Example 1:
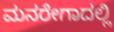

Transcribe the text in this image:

ಮನರೇಗಾದಲ್ಲಿ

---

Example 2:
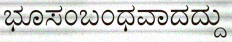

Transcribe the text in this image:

ಭೂಸಂಬಂಧವಾದದ್ದು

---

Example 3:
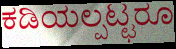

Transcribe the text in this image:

ಕಡಿಯಲ್ಪಟ್ಟರೂ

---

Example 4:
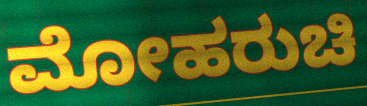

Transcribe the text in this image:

ಮೋಹರುಚಿ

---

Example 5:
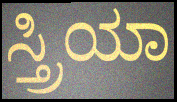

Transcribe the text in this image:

ಸ್ತ್ರಿಯಾ